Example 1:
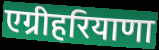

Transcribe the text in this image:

एग्रीहरियाणा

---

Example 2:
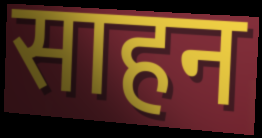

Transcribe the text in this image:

साहन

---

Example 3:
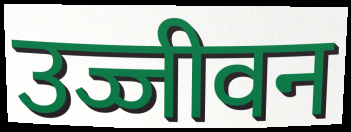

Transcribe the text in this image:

उज्जीवन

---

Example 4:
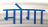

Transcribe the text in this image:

मोगा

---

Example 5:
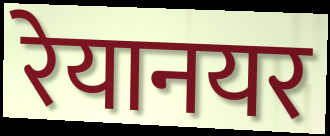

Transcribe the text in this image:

रेयानयर